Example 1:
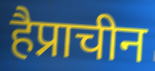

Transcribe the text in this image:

हैप्राचीन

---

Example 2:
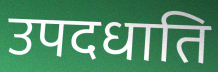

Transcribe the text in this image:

उपदधाति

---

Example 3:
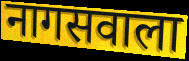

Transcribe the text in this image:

नागसवाला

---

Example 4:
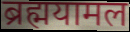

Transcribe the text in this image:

ब्रह्मयामल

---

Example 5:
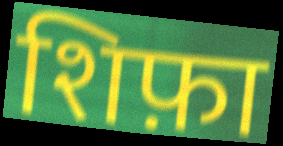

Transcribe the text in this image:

शिफ़ा